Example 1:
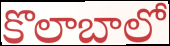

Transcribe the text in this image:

కొలాబాలో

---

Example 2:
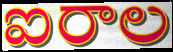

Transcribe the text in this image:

ఐరాల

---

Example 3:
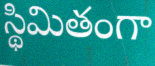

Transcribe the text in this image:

స్థిమితంగా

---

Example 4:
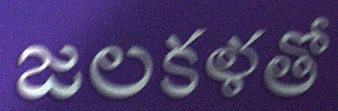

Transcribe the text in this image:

జలకళతో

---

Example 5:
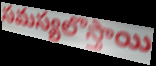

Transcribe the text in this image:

సమస్యలొస్తాయి